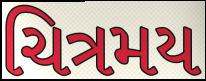
ચિત્રમય